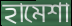
হামেশা